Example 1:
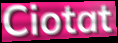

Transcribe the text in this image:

Ciotat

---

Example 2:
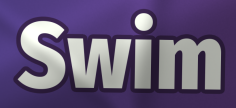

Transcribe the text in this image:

Swim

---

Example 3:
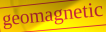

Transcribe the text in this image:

geomagnetic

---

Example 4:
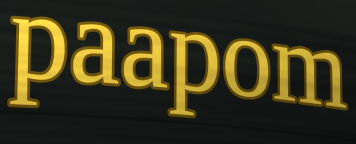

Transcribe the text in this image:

paapom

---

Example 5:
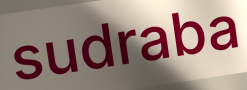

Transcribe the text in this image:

sudraba